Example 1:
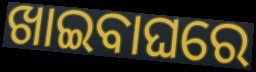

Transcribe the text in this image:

ଖାଇବାଘରେ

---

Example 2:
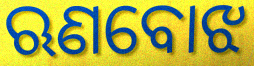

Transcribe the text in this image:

ଋଣବୋଝ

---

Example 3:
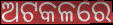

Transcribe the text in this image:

ଅଟକଳରେ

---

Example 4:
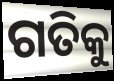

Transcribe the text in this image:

ଗତିକୁ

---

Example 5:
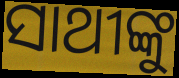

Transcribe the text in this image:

ସାଥୀଙ୍କୁ